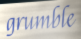
grumble